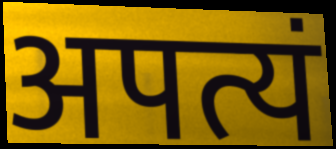
अपत्यं